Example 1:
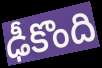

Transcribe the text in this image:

ఢీకొంది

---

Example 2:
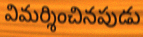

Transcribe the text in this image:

విమర్శించినపుడు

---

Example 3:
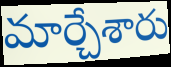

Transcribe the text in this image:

మార్చేశారు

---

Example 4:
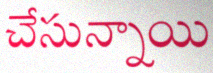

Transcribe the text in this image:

చేసున్నాయి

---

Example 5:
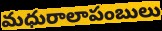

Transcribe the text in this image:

మధురాలాపంబులు